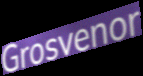
Grosvenor